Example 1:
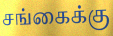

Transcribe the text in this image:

சங்கைக்கு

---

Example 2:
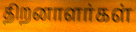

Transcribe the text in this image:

திறனாளர்கள்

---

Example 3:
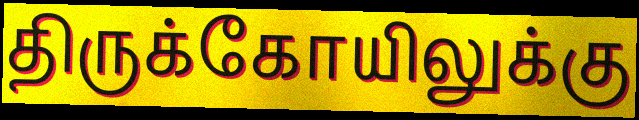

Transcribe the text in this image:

திருக்கோயிலுக்கு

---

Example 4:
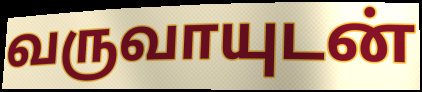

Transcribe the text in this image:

வருவாயுடன்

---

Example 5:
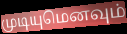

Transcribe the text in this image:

முடியுமெனவும்